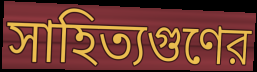
সাহিত্যগুণের